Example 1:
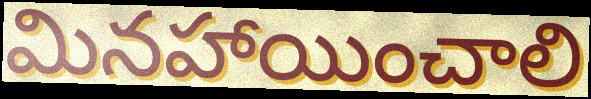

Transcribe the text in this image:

మినహాయించాలి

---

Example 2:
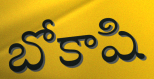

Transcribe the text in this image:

బోకాషి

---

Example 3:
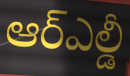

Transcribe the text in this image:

ఆర్ఎల్డీ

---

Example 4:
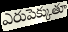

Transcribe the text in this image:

ఎరుపెక్కుతూ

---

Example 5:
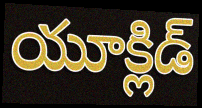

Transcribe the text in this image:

యూక్లిడ్